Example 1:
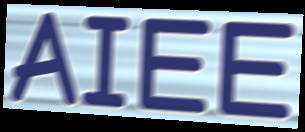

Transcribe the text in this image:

AIEE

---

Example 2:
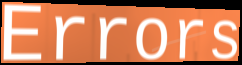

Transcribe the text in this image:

Errors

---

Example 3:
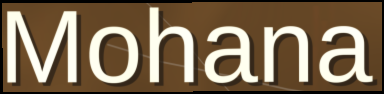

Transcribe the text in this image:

Mohana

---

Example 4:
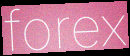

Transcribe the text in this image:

forex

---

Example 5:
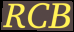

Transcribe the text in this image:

RCB